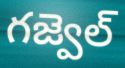
గజ్వెల్